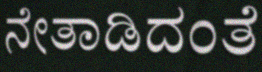
ನೇತಾಡಿದಂತೆ